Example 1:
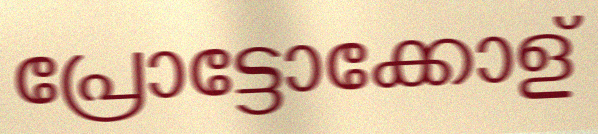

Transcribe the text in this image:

പ്രോട്ടോക്കോള്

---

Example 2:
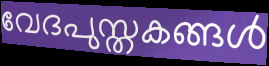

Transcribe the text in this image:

വേദപുസ്തകങ്ങൾ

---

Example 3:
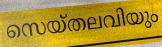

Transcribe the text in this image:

സെയ്തലവിയും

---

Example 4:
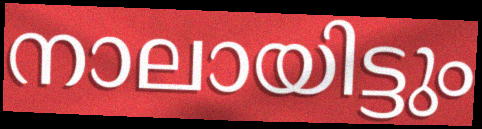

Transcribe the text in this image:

നാലായിട്ടും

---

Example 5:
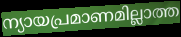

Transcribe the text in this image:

ന്യായപ്രമാണമില്ലാത്ത